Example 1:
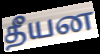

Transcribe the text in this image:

தீயன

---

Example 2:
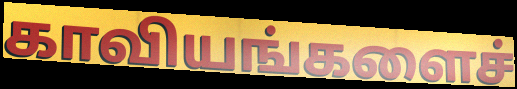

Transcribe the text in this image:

காவியங்களைச்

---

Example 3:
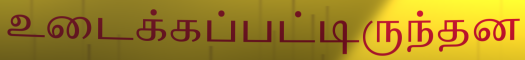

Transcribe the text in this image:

உடைக்கப்பட்டிருந்தன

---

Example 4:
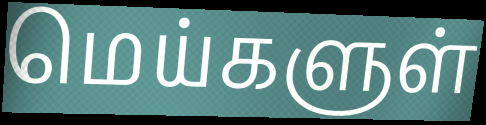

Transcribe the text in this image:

மெய்களுள்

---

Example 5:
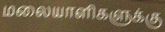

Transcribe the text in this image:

மலையாளிகளுக்கு